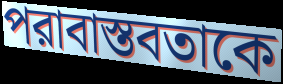
পরাবাস্তবতাকে